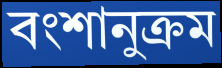
বংশানুক্রম